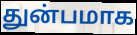
துன்பமாக